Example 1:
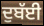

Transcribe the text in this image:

ਦੁਬੱਈ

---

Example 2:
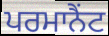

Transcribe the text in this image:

ਪਰਮਾਨੈਂਟ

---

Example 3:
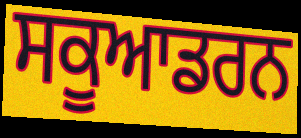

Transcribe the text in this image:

ਸਕੂਆਡਰਨ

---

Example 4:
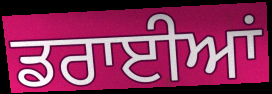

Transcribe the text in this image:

ਡਰਾਈਆਂ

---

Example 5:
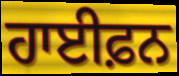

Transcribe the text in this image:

ਹਾਈਫ਼ਨ